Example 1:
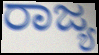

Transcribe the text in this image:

ರಾಜ್ಯ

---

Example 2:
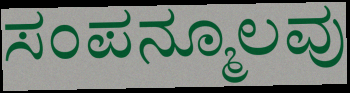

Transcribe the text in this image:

ಸಂಪನ್ಮೂಲವು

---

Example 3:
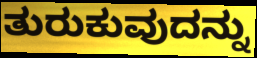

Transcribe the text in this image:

ತುರುಕುವುದನ್ನು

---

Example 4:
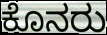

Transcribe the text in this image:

ಕೊನರು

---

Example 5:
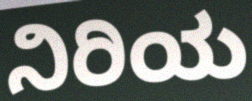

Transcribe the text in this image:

ನಿರಿಯ